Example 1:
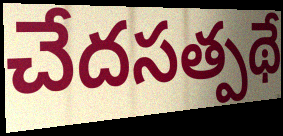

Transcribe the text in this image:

చేదసత్పథే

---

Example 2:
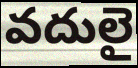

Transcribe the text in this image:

వదులై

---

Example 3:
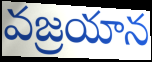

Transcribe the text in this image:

వజ్రయాన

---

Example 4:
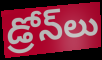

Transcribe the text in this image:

డ్రోన్‌లు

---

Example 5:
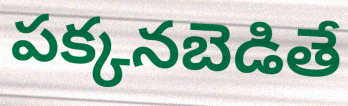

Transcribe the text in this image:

పక్కనబెడితే